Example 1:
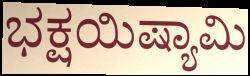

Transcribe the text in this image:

ಭಕ್ಷಯಿಷ್ಯಾಮಿ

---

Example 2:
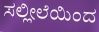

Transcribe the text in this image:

ಸಲ್ಲೀಲೆಯಿಂದ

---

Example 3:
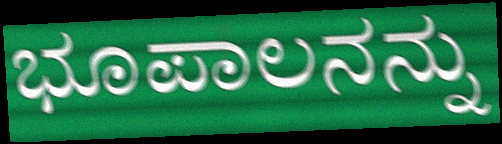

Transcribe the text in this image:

ಭೂಪಾಲನನ್ನು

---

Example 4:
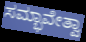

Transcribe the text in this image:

ಸಮ್ಭಾವೇತ್ವಾ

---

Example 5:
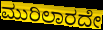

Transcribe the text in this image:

ಮುರಿಲಾರದೇ